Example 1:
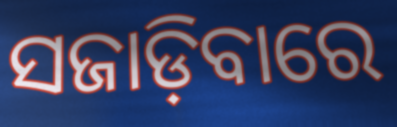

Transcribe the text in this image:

ସଜାଡ଼ିବାରେ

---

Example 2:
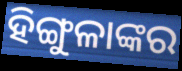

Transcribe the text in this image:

ହିଙ୍ଗୁଳାଙ୍କର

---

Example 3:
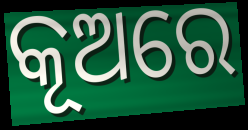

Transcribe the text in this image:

କୂଅରେ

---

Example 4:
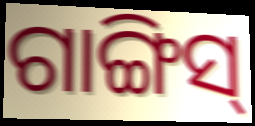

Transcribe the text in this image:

ଗାଙ୍ଗିସ୍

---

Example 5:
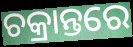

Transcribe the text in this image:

ଚକ୍ରାନ୍ତରେ